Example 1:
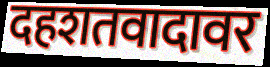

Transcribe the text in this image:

दहशतवादावर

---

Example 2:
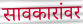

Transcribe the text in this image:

सावकारांवर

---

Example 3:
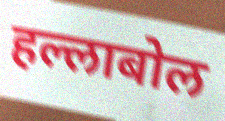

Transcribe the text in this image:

हल्लाबोल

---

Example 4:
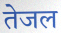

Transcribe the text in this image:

तेजल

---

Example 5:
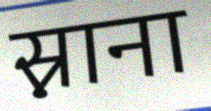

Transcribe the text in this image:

स्नाना